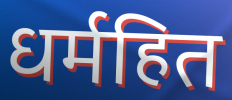
धर्महित